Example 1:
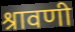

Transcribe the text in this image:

श्रावणी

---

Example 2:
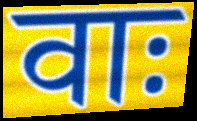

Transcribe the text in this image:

वाः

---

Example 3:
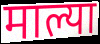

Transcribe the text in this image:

माल्या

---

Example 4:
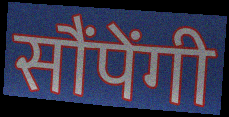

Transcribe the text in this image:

सौंपेंगी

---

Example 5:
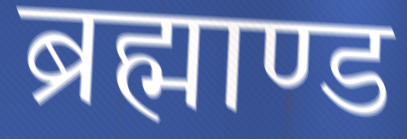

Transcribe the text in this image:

ब्रह्माण्ड